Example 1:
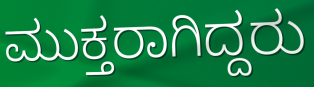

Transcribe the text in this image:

ಮುಕ್ತರಾಗಿದ್ದರು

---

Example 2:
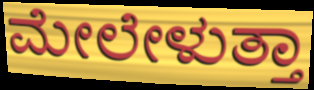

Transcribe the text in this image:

ಮೇಲೇಳುತ್ತಾ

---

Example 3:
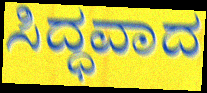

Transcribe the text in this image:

ಸಿದ್ಧವಾದ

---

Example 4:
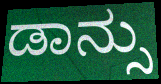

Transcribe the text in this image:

ಡಾನ್ಸು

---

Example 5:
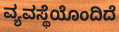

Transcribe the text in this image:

ವ್ಯವಸ್ಥೆಯೊಂದಿದೆ